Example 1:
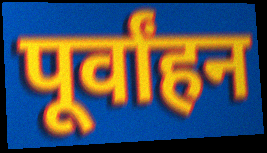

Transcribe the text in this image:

पूर्वांहन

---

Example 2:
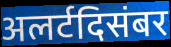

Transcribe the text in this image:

अलर्टदिसंबर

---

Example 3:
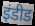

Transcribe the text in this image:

इंडीड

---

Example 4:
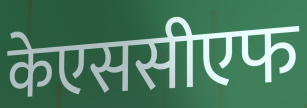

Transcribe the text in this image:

केएससीएफ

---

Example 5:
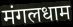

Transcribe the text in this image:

मंगलधाम